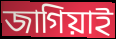
জাগিয়াই